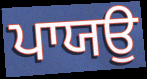
ਪਾਯਉ